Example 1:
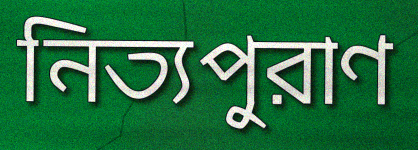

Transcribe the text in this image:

নিত্যপুরাণ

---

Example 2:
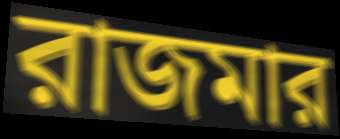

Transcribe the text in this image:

রাজমার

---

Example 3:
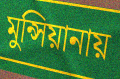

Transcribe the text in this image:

মুন্সিয়ানায়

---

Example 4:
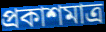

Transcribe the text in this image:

প্রকাশমাত্র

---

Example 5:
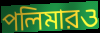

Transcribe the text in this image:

পলিমারও